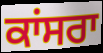
ਕਾਂਸਰਾ